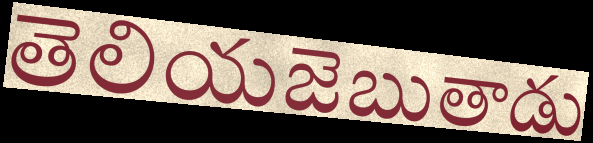
తెలియజెబుతాడు